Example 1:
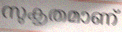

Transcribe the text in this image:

സുകൃതമാണ്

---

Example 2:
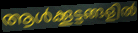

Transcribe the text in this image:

ആൾക്കൂട്ടങ്ങളിൽ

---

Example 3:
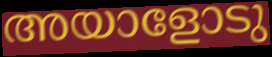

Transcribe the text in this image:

അയാളോടു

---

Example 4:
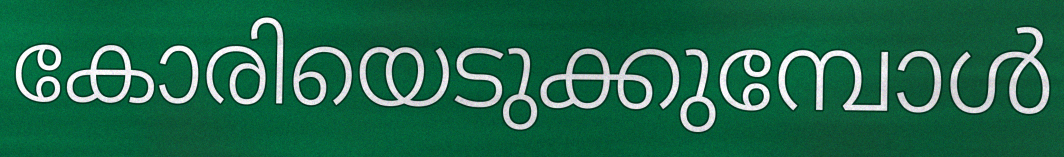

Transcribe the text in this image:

കോരിയെടുക്കുമ്പോൾ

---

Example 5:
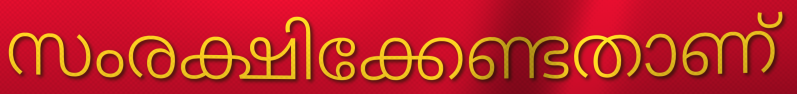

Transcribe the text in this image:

സംരക്ഷിക്കേണ്ടതാണ്